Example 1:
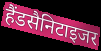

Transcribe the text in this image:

हैंडसैनिटाइजर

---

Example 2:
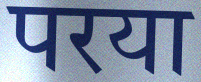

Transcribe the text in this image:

परया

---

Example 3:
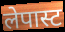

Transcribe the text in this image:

लेपास्ट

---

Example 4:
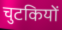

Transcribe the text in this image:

चुटकियों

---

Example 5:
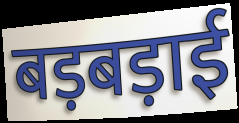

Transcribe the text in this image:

बड़बड़ाई